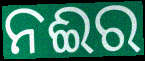
ନଈର